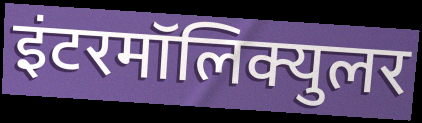
इंटरमॉलिक्युलर